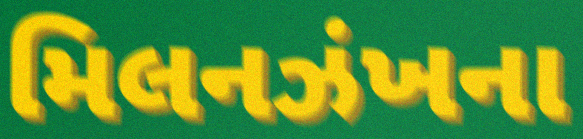
મિલનઝંખના